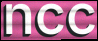
ncc